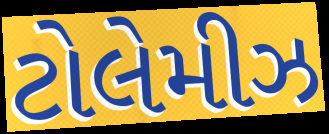
ટોલેમીઝ